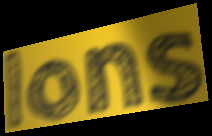
Ions